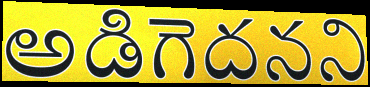
అడిగెదనని